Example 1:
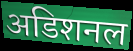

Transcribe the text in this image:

अडिशनल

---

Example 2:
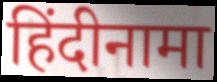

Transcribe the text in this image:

हिंदीनामा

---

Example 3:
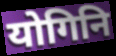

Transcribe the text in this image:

योगिनि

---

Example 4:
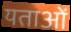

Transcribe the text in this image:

यताओं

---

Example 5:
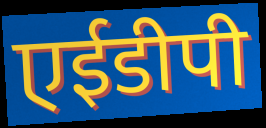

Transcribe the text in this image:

एईडीपी